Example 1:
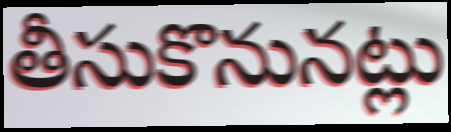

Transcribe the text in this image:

తీసుకొనునట్లు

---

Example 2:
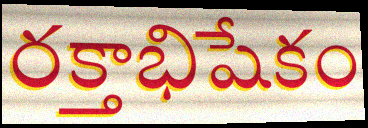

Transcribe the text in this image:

రక్తాభిషేకం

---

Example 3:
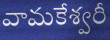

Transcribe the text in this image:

వామకేశ్వరీ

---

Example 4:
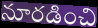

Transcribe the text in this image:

నూరడించి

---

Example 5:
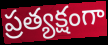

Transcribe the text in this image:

ప్రత్యక్షంగా